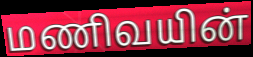
மணிவயின்